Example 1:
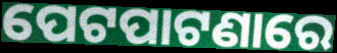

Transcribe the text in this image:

ପେଟପାଟଣାରେ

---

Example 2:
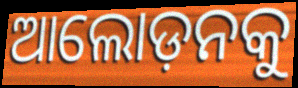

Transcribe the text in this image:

ଆଲୋଡ଼ନକୁ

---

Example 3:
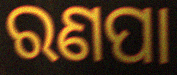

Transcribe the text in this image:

ରଣପା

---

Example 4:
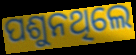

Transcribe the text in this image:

ପଶୁନଥିଲେ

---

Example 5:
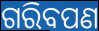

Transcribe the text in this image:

ଗରିବପଣ